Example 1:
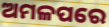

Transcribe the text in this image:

ଅମଳପରେ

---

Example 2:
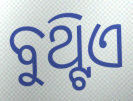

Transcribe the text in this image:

ବୁଥ୍ଟିଏ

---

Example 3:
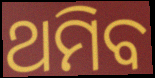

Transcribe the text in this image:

ଥମିବ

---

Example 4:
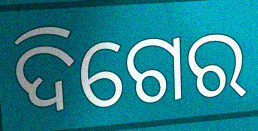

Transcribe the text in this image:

ଦିଗେର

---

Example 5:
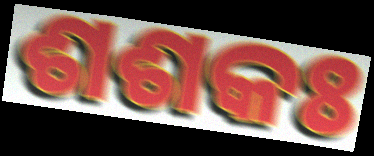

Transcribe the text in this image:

ଶଶକଃ